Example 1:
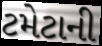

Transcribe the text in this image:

ટમેટાની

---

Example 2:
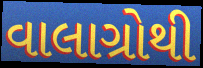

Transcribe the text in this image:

વાલાગ્રોથી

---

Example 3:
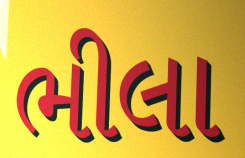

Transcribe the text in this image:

ભીલા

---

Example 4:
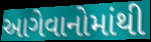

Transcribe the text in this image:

આગેવાનોમાંથી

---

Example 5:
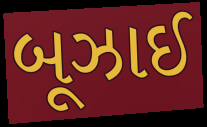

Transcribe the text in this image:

બૂઝાઈ